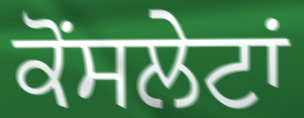
ਕੋਂਸਲੇਟਾਂ